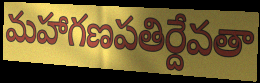
మహాగణపతిర్దేవతా